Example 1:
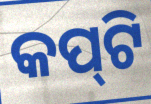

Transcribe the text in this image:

କପ୍‌ଟି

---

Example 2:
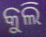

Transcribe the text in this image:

କୁଲି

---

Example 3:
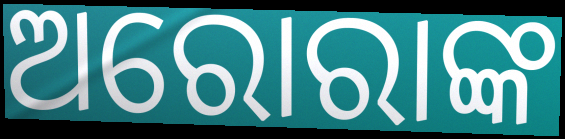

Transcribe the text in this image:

ଅରୋରାଙ୍କ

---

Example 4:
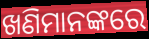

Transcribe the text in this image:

ଖଣିମାନଙ୍କରେ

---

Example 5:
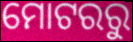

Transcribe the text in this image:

ମୋଟରରୁ